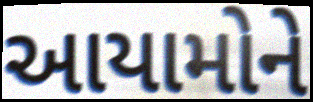
આયામોને